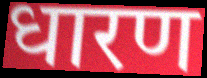
धारण